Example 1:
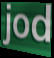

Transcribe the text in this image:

jod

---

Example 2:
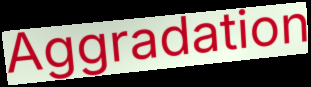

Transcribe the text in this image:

Aggradation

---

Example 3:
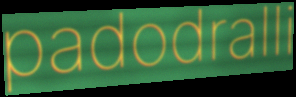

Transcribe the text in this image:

padodralli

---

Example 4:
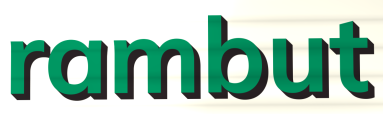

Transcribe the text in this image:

rambut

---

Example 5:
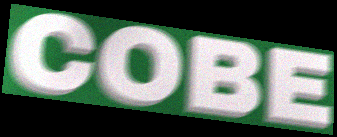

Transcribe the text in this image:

COBE